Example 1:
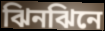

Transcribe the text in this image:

ঝিনঝিনে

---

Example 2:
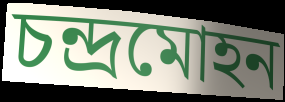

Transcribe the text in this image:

চন্দ্রমোহন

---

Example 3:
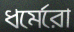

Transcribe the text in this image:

ধর্মেরো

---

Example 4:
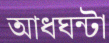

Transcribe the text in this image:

আধঘন্টা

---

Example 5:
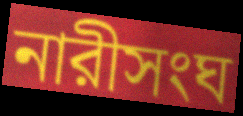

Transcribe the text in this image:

নারীসংঘ